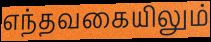
எந்தவகையிலும்